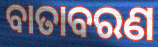
ବାତାବରଣ